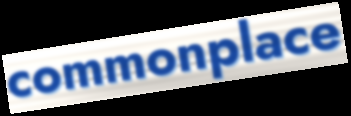
commonplace